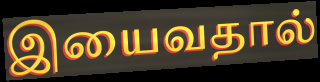
இயைவதால்